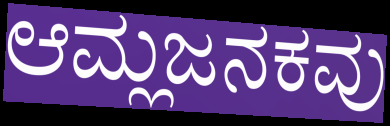
ಆಮ್ಲಜನಕವು